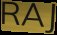
RAJ